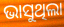
ଭାସୁଥିଲା